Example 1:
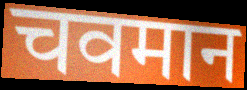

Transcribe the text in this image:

चवमान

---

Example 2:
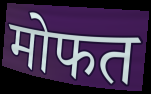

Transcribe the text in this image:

मोफत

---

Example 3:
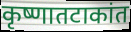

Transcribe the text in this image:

कृष्णातटाकांत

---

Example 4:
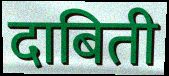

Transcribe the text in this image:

दाबिती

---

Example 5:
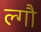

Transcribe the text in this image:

ल्गौ